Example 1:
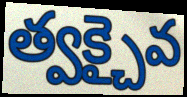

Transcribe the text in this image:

త్వక్చైవ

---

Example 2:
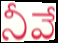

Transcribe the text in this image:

నీవే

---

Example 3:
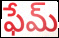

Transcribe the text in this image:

ఫేమ్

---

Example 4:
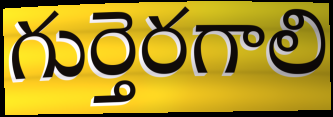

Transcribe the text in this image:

గుర్తెరగాలి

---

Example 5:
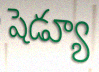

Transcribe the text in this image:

షెడ్యూ